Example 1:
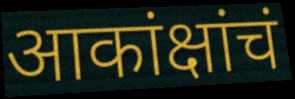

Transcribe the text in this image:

आकांक्षांचं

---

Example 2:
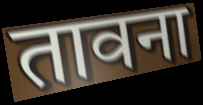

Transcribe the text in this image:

तावना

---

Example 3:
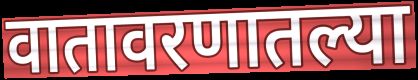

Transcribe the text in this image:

वातावरणातल्या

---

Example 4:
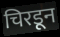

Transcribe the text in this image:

चिरडून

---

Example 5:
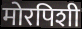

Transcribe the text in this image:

मोरपिशी